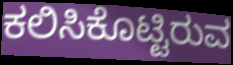
ಕಲಿಸಿಕೊಟ್ಟಿರುವ